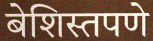
बेशिस्तपणे